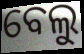
ବେଲୁ